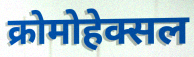
क्रोमोहेक्सल